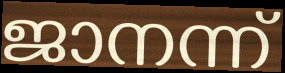
ജാനന്ന്